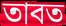
তাবত